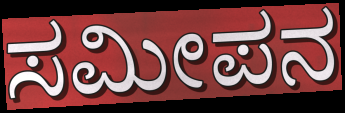
ಸಮೀಪನ